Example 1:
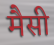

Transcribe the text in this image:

मैसी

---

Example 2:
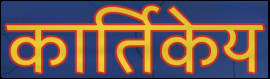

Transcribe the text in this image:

कार्तिकेय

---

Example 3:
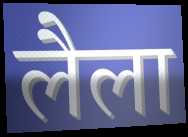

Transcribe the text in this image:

लैला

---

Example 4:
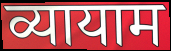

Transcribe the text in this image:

व्यायाम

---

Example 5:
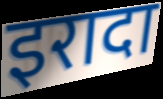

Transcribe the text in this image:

इरादा